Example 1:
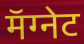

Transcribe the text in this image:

मॅग्नेट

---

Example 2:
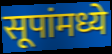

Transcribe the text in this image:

सूपांमध्ये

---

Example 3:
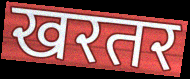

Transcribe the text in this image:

खरतर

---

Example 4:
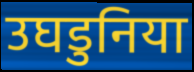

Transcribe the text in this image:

उघडुनिया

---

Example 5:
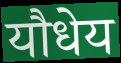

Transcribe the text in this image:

यौधेय